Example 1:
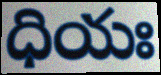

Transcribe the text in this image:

ధియః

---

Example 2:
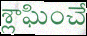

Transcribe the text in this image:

శ్లాఘించే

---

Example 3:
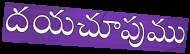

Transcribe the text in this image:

దయచూపుము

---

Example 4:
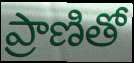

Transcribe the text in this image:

ప్రాణితో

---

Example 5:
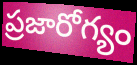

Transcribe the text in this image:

ప్రజారోగ్యం